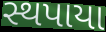
સ્થપાયા